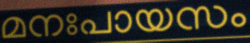
മനഃപായസം